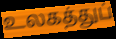
உலகத்துப்